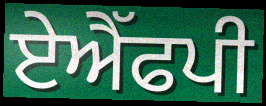
ਏਐੱਫਪੀ